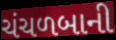
ચંચળબાની